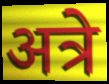
अत्रे